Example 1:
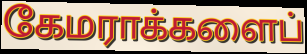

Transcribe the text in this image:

கேமராக்களைப்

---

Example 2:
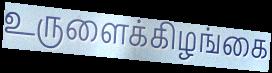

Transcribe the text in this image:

உருளைக்கிழங்கை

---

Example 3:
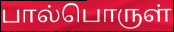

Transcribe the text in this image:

பால்பொருள்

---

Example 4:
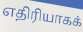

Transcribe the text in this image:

எதிரியாகக்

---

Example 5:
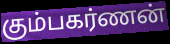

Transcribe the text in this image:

கும்பகர்ணன்